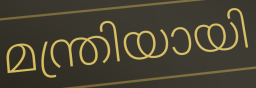
മന്ത്രിയായി